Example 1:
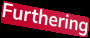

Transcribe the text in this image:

Furthering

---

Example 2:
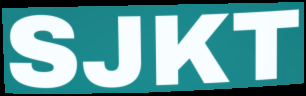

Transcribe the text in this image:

SJKT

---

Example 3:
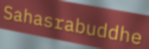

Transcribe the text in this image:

Sahasrabuddhe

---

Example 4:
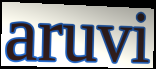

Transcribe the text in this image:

aruvi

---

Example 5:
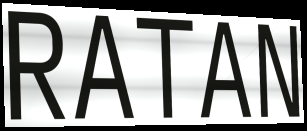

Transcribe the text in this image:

RATAN